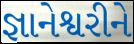
જ્ઞાનેશ્વરીને